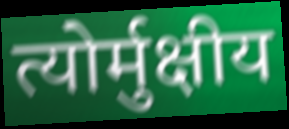
त्योर्मुक्षीय